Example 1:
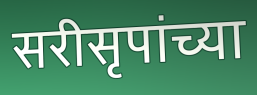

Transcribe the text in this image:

सरीसृपांच्या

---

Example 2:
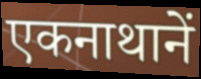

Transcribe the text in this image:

एकनाथानें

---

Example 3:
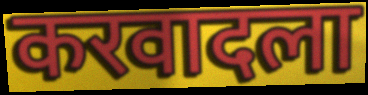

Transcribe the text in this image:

करवादला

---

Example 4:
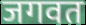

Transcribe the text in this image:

जगवत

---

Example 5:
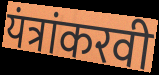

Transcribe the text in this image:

यंत्रांकरवी